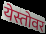
येस्तोवर